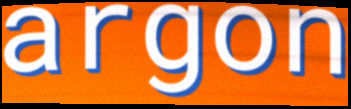
argon